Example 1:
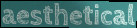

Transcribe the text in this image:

aesthetical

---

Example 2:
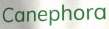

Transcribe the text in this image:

Canephora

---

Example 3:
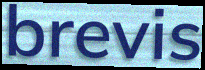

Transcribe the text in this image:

brevis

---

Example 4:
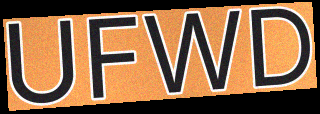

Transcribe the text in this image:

UFWD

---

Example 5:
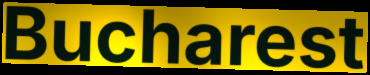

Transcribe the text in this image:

Bucharest